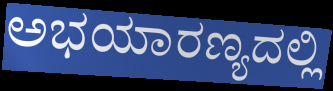
ಅಭಯಾರಣ್ಯದಲ್ಲಿ